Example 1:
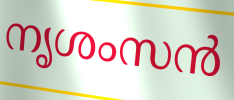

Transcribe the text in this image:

നൃശംസൻ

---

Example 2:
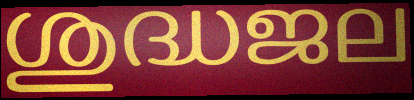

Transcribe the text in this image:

ശുദ്ധജല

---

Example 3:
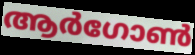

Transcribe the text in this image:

ആർഗോൺ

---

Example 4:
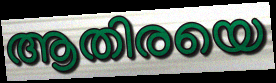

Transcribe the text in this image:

ആതിരയെ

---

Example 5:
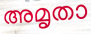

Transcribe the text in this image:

അമൃതാ